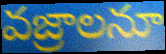
వజ్రాలనూ